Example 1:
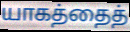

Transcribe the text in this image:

யாகத்தைத்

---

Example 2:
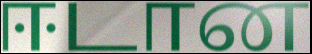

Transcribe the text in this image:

ஈடான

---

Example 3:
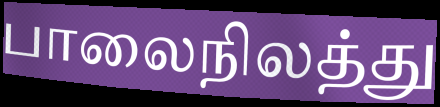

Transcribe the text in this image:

பாலைநிலத்து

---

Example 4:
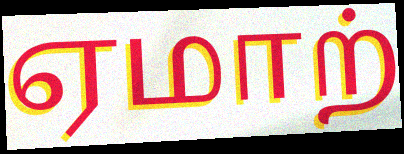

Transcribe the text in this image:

ஏமாற்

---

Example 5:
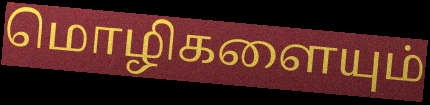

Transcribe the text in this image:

மொழிகளையும்